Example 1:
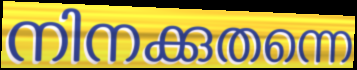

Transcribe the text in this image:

നിനക്കുതന്നെ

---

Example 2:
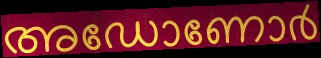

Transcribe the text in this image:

അഡോണോർ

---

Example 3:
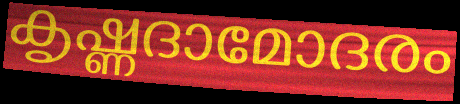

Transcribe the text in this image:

കൃഷ്ണദാമോദരം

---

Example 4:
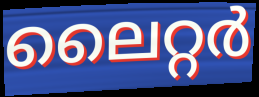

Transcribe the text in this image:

ലൈറ്റർ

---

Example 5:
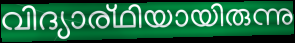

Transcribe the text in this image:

വിദ്യാര്ഥിയായിരുന്നു